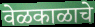
वेळकाळाचे